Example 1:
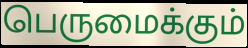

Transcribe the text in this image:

பெருமைக்கும்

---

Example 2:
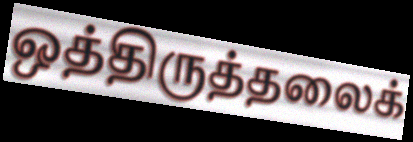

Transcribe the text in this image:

ஒத்திருத்தலைக்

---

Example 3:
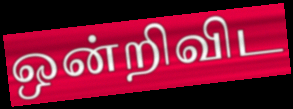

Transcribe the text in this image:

ஒன்றிவிட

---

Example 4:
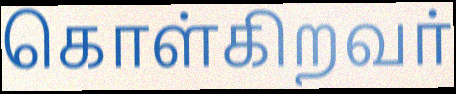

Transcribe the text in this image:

கொள்கிறவர்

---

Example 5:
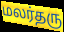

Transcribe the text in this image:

மலர்தரு